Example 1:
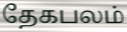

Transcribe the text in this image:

தேகபலம்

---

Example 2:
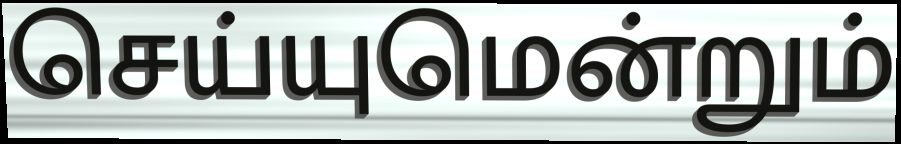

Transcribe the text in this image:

செய்யுமென்றும்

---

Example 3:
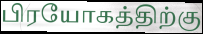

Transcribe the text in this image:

பிரயோகத்திற்கு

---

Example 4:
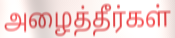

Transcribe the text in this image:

அழைத்தீர்கள்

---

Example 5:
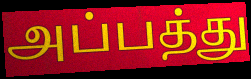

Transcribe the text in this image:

அப்பத்து